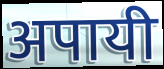
अपायी